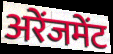
अरेंजमेंट